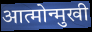
आत्मोन्मुखी